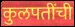
कुलपतींची